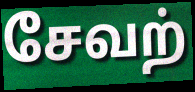
சேவற்